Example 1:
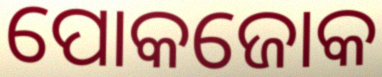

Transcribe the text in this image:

ପୋକଜୋକ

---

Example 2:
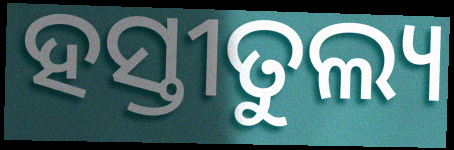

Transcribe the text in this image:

ହସ୍ତୀତୁଲ୍ୟ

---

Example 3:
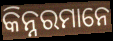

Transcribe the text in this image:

କିନ୍ନରମାନେ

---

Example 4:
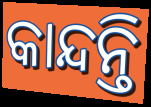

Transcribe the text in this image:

କାନ୍ଦନ୍ତି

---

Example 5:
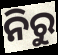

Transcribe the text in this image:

ନିରୁ